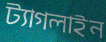
ট্যাগলাইন